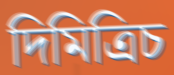
দিমিত্রিচ